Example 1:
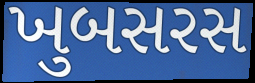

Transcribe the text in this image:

ખુબસરસ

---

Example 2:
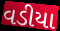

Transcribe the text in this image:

વડીયા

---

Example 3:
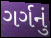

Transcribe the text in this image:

ગર્ગનું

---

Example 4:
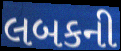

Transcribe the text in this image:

લબકની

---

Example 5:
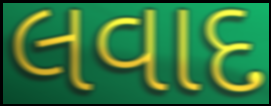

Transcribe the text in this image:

લવાદ